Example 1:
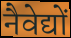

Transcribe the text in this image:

नैवेद्यों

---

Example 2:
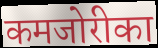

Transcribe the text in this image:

कमजोरीका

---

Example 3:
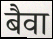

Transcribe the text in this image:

बैवा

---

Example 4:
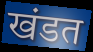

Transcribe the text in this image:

खंडत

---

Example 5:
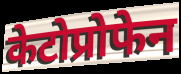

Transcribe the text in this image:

केटोप्रोफेन